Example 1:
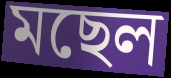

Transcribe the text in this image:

মছেল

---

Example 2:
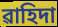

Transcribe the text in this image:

ৱাহিদা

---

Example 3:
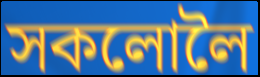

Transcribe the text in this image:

সকলোলৈ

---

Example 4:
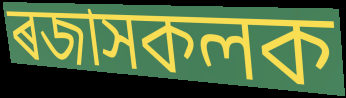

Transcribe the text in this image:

ৰজাসকলক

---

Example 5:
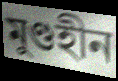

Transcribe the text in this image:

মুণ্ডহীন